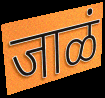
जाळं